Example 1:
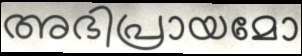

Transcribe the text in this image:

അഭിപ്രായമോ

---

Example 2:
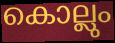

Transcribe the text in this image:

കൊല്ലും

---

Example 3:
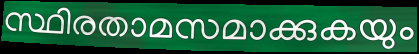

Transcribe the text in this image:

സ്ഥിരതാമസമാക്കുകയും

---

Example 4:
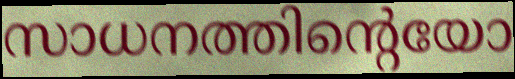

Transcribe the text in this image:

സാധനത്തിന്റെയോ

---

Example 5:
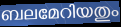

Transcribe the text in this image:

ബലമേറിയതും